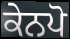
ਕੇਨਪੋ